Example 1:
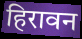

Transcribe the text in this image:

हिरावन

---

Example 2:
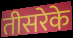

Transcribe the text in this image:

तीसरेके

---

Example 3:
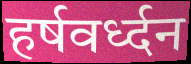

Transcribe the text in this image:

हर्षवर्ध्दन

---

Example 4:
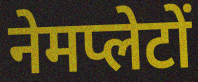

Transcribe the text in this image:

नेमप्लेटों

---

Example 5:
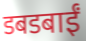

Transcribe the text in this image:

डबडबाईं